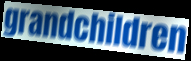
grandchildren